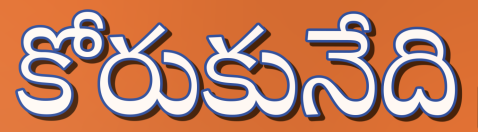
కోరుకునేది